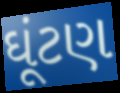
ઘૂંટણ